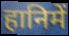
हानिमें